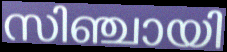
സിഞ്ചായി